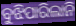
ବୁଝିପାରିଲାନି